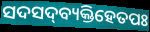
ସଦସଦ୍‌ବ୍ୟକ୍ତିହେତପଃ